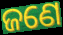
ଜଣେ